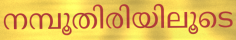
നമ്പൂതിരിയിലൂടെ